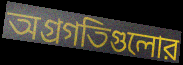
অগ্রগতিগুলোর